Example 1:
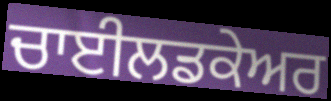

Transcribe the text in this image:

ਚਾਈਲਡਕੇਅਰ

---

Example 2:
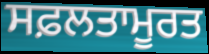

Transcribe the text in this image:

ਸਫ਼ਲਤਾਮੂਰਤ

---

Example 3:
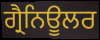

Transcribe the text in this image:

ਗ੍ਰੈਨਿਊਲਰ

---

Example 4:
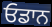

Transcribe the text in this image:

ਓਡਾਨ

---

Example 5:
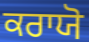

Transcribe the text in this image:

ਕਰਾਯੋ